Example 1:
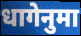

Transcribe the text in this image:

धागेनुमा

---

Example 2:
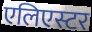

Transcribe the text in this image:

एलिएस्टर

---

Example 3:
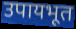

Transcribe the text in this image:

उपायभूत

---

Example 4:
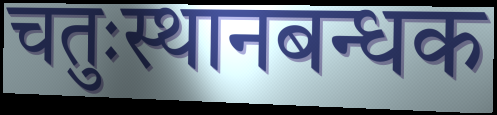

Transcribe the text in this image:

चतुःस्थानबन्धक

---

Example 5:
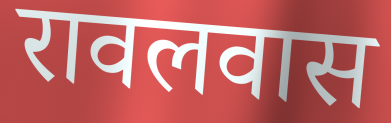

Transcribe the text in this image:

रावलवास